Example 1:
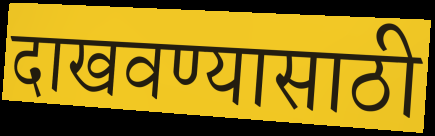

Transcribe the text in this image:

दाखवण्यासाठी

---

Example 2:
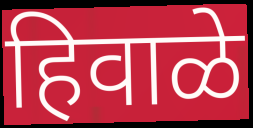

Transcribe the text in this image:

हिवाळे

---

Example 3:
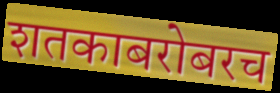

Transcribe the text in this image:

शतकाबरोबरच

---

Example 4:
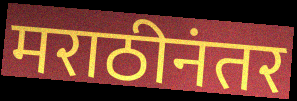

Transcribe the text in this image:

मराठीनंतर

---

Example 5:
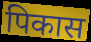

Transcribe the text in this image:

पिकास